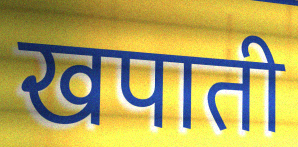
खपाती